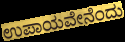
ಉಪಾಯವೇನೆಂದು